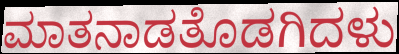
ಮಾತನಾಡತೊಡಗಿದಳು